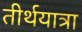
तीर्थयात्रा